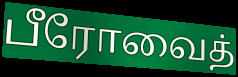
பீரோவைத்